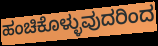
ಹಂಚಿಕೊಳ್ಳುವುದರಿಂದ